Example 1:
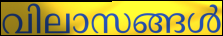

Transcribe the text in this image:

വിലാസങ്ങൾ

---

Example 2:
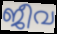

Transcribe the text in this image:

ജീവ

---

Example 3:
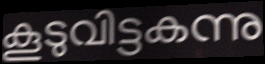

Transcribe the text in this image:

കൂടുവിട്ടകന്നു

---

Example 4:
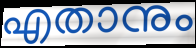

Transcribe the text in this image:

എതാനും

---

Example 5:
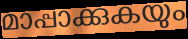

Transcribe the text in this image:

മാപ്പാക്കുകയും